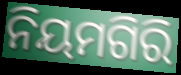
ନିୟମଗିରି